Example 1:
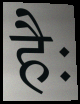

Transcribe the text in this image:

हैः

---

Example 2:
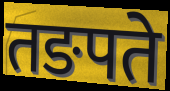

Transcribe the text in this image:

तङपते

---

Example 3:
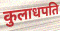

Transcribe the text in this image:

कुलाधपति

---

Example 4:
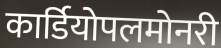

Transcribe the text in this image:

कार्डियोपलमोनरी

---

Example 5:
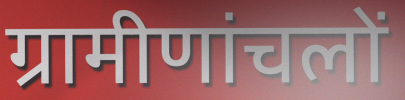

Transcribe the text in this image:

ग्रामीणांचलों